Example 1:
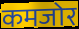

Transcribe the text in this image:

कमजोर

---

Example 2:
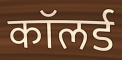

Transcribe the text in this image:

कॉलर्ड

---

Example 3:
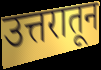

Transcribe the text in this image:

उत्तरातून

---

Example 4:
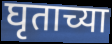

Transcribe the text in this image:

घृताच्या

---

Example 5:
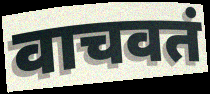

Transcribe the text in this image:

वाचवतं